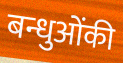
बन्धुओंकी